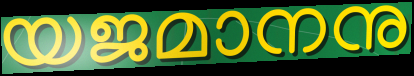
യജമാനനു